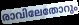
രാവിലേതോറും